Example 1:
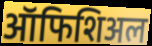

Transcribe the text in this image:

ऑफिशिअल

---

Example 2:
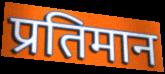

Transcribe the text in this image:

प्रतिमान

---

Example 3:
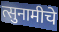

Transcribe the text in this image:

त्सुनामीचे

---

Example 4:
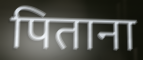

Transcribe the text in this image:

पिताना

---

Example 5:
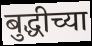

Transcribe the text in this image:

बुद्धीच्या